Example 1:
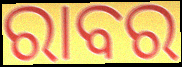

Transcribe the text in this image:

ରାବର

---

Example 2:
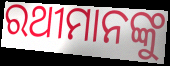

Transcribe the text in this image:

ରଥୀମାନଙ୍କୁ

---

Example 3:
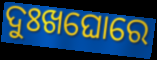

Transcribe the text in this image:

ଦୁଃଖଘୋରେ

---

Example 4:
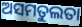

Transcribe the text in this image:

ଅସମତୁଲତା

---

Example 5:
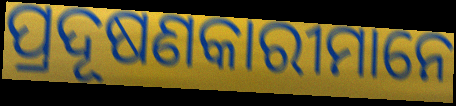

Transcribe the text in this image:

ପ୍ରଦୂଷଣକାରୀମାନେ